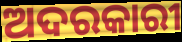
ଅଦରକାରୀ